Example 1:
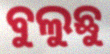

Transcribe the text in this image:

ବୁଲୁଛୁ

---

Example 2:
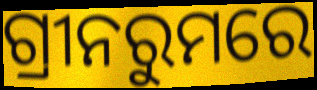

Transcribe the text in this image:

ଗ୍ରୀନରୁମରେ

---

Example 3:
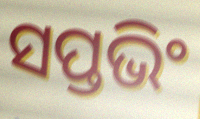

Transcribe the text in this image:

ସପ୍ତଭିଂ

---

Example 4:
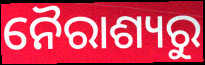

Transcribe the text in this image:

ନୈରାଶ୍ୟରୁ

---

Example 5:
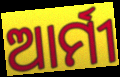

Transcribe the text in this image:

ଆର୍ମୀ